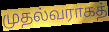
முதல்வராகத்